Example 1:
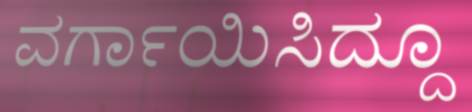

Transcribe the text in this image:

ವರ್ಗಾಯಿಸಿದ್ದೂ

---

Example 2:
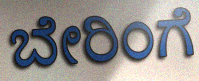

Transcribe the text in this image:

ಬೇರಿಂಗೆ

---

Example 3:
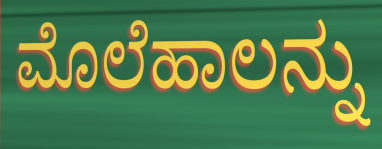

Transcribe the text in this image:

ಮೊಲೆಹಾಲನ್ನು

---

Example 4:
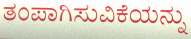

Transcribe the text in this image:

ತಂಪಾಗಿಸುವಿಕೆಯನ್ನು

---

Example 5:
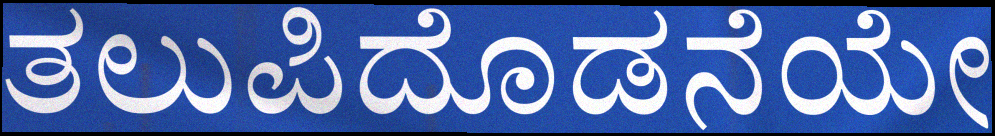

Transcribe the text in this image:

ತಲುಪಿದೊಡನೆಯೇ